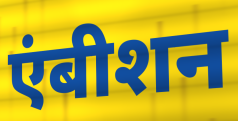
एंबीशन